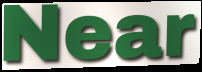
Near